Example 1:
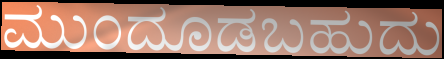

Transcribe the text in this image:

ಮುಂದೂಡಬಹುದು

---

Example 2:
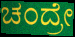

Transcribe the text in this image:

ಚಂದ್ರೇ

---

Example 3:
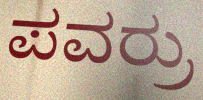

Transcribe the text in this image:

ಪವರ್ರು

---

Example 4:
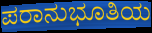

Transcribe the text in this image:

ಪರಾನುಭೂತಿಯ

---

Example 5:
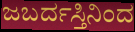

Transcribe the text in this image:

ಜಬರ್ದಸ್ತಿನಿಂದ